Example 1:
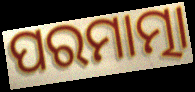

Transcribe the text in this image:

ପରମାତ୍ମା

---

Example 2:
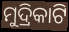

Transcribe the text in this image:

ମୁଦ୍ରିକାଟି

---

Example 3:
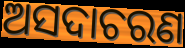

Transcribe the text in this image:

ଅସଦାଚରଣ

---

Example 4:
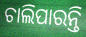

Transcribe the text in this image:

ଚାଲିପାରନ୍ତି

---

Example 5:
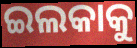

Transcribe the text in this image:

ଇଲକାକୁ